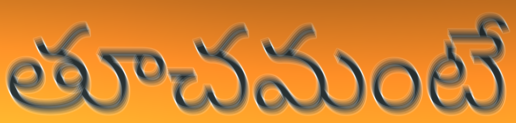
తూచమంటే